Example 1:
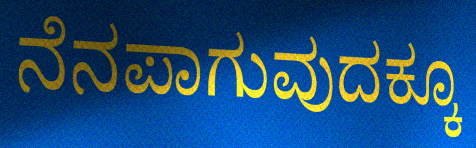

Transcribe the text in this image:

ನೆನಪಾಗುವುದಕ್ಕೂ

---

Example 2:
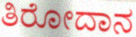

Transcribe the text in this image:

ತಿರೋದಾನ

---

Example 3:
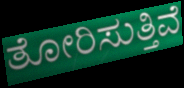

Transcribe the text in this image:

ತೋರಿಸುತ್ತಿವೆ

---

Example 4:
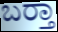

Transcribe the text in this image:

ಬರ‍್ತಾ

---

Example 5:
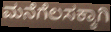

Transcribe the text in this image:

ಮನೆಗೆಲಸಕ್ಕಾಗಿ